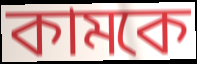
কামকে